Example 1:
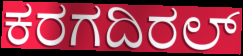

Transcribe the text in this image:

ಕರಗದಿರಲ್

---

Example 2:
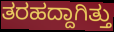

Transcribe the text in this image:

ತರಹದ್ದಾಗಿತ್ತು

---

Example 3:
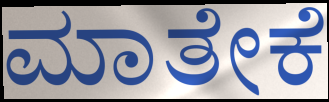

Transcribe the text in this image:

ಮಾತೇಕೆ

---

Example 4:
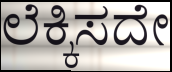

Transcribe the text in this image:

ಲೆಕ್ಕಿಸದೇ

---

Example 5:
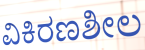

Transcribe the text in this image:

ವಿಕಿರಣಶೀಲ